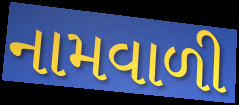
નામવાળી